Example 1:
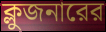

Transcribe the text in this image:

ক্লুজনারের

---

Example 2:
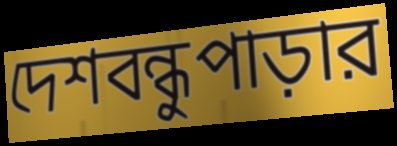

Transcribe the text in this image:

দেশবন্ধুপাড়ার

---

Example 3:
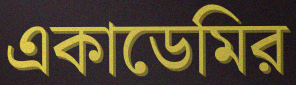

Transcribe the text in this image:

একাডেমির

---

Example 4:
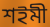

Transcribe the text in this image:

শইমী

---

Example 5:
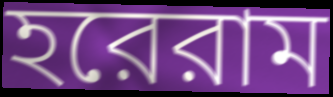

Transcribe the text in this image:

হরেরাম